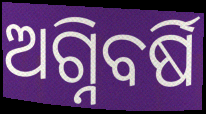
ଅଗ୍ନିବର୍ଷି